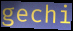
gechi